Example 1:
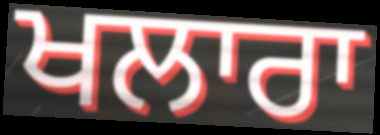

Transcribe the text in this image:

ਖਲਾਰਾ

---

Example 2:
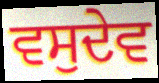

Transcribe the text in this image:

ਵਸੁਦੇਵ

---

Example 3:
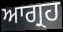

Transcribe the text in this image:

ਆਗ੍ਰਹ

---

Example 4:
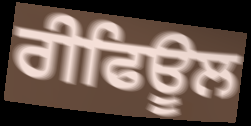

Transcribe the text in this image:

ਰੀਫਿਊਲ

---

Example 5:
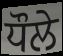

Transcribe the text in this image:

ਧੌਲੇ